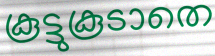
കൂട്ടുകൂടാതെ